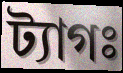
ট্যাগঃ